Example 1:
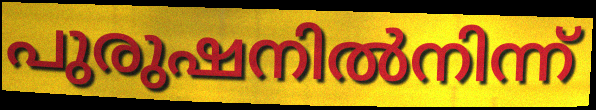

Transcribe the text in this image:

പുരുഷനിൽനിന്ന്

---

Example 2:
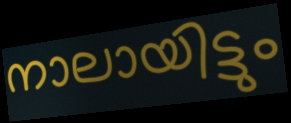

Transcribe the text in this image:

നാലായിട്ടും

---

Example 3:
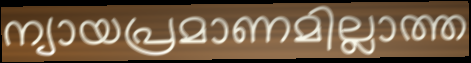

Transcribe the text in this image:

ന്യായപ്രമാണമില്ലാത്ത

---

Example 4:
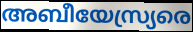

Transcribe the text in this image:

അബീയേസ്ര്യരെ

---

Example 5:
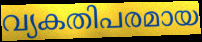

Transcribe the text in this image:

വ്യകതിപരമായ